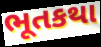
ભૂતકથા